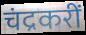
चंद्रकरीं